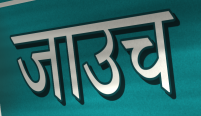
जाउच